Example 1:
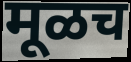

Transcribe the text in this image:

मूळच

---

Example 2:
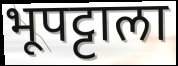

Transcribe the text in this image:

भूपट्टाला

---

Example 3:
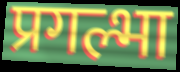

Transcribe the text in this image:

प्रगल्भा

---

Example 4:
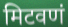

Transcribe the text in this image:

मिटवणं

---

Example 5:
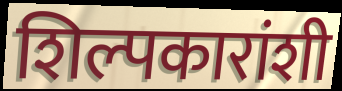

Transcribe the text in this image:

शिल्पकारांशी